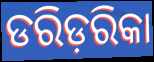
ଡରିଡ଼ରିକା